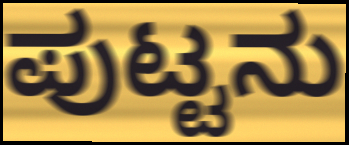
ಪುಟ್ಟನು